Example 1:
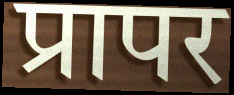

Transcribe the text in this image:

प्रापर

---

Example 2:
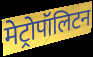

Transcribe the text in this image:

मेट्रोपॉलिटन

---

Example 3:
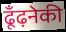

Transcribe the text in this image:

ढूँढ़नेकी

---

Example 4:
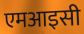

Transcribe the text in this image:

एमआइसी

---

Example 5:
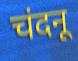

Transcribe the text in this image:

चंदनू